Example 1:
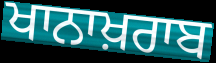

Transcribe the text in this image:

ਖਾਨਾਖ਼ਰਾਬ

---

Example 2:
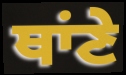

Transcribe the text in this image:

ਥਾਂਣੇ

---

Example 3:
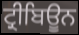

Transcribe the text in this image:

ਟ੍ਰੀਬਿਊਨ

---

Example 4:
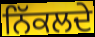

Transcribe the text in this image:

ਨਿੱਕਲਦੇ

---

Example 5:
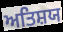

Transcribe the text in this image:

ਅਤਿਸ਼ਯ